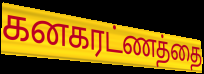
கனகரட்ணத்தை